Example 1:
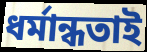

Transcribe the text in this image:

ধর্মান্ধতাই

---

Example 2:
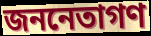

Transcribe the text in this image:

জননেতাগণ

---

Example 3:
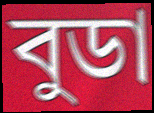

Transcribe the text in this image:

বুডা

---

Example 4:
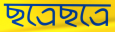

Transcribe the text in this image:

ছত্রেছত্রে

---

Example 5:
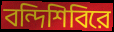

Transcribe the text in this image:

বন্দিশিবিরে